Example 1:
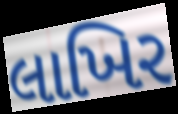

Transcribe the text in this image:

લાખિર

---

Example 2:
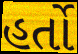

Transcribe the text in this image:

હર્તો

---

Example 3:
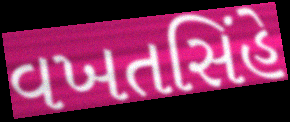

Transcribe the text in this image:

વખતસિંહે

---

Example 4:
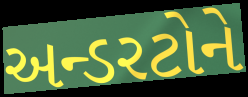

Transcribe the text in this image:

અન્ડરટોને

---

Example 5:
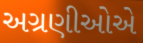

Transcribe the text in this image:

અગ્રણીઓએ